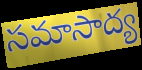
సమాసాద్య